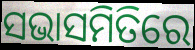
ସଭାସମିତିରେ